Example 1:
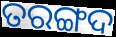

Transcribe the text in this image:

ତରଙ୍ଗଦ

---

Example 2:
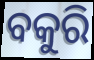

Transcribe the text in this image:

ବକୁରି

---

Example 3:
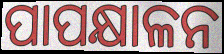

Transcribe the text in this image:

ପାପକ୍ଷାଳନ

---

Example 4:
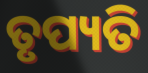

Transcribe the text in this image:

ତୃପ୍ୟତି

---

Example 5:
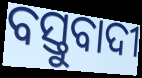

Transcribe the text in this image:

ବସ୍ତୁବାଦୀ